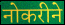
नोकरीने